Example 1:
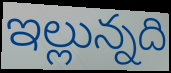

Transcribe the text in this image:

ఇల్లున్నది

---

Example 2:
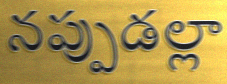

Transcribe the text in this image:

నప్పుడల్లా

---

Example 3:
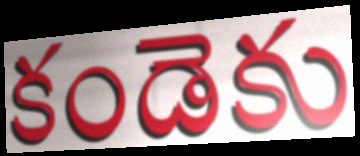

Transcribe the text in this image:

కండెకు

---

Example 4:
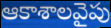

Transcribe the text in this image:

ఆకాశాలవైపు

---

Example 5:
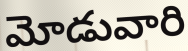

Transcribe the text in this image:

మోడువారి